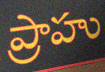
ప్రాహు